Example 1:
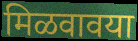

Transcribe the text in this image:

मिळवावया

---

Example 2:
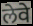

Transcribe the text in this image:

लेवे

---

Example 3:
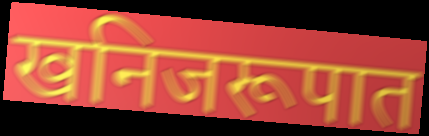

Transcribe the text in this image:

खनिजरूपात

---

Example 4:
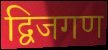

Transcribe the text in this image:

द्विजगण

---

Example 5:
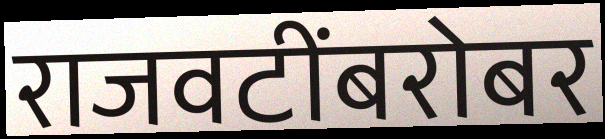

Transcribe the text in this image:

राजवटींबरोबर